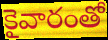
కైవారంతో